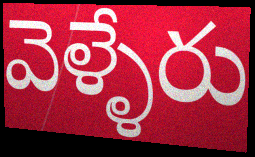
వెళ్ళేరు